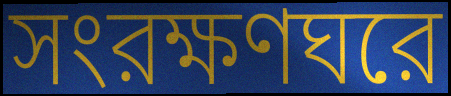
সংরক্ষণঘরে